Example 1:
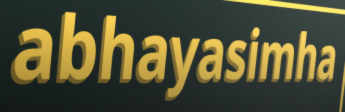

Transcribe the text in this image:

abhayasimha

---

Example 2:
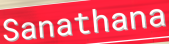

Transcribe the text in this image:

Sanathana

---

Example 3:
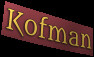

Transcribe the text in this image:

Kofman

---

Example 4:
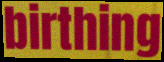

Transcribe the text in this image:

birthing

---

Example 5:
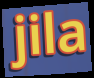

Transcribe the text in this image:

jila